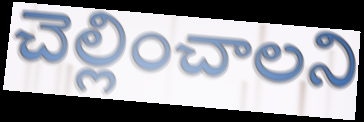
చెల్లించాలని